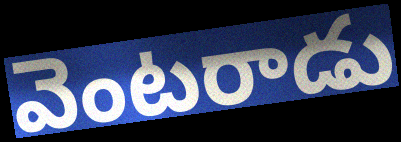
వెంటరాడు